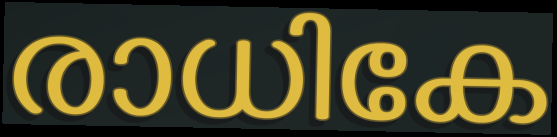
രാധികേ